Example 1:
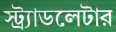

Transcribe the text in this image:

স্ট্র্যাডলেটার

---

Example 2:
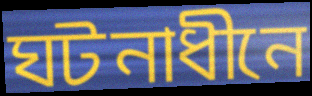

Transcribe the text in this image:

ঘটনাধীনে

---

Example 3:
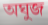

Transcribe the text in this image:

অঘুজ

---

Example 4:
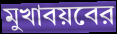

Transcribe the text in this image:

মুখাবয়বের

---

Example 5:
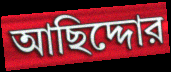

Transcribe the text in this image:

আছিদ্দোর